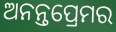
ଅନନ୍ତପ୍ରେମର